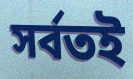
সর্বতই